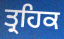
ਤ੍ਰਹਿਕ